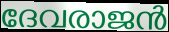
ദേവരാജൻ